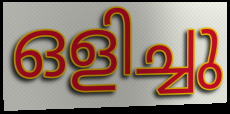
ഒളിച്ചു